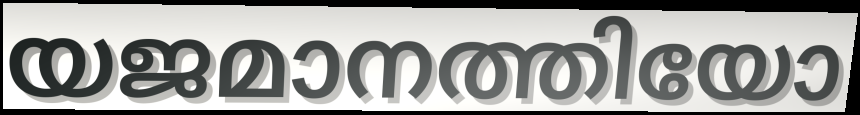
യജമാനത്തിയോ